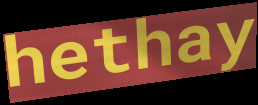
hethay